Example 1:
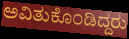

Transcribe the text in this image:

ಅವಿತುಕೊಂಡಿದ್ದರು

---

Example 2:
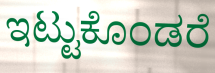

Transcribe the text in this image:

ಇಟ್ಟುಕೊಂಡರೆ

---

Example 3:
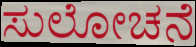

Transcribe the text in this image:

ಸುಲೋಚನೆ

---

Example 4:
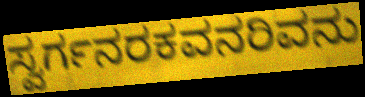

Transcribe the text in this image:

ಸ್ವರ್ಗನರಕವನರಿವನು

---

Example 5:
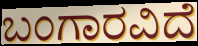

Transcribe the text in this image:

ಬಂಗಾರವಿದೆ